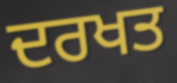
ਦਰਖਤ